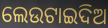
ଲେଉଟାଇଦିଅ